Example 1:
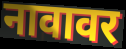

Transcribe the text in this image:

नावावर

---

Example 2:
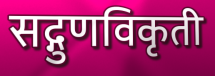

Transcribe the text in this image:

सद्गुणविकृती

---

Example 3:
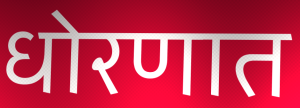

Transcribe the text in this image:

धोरणात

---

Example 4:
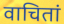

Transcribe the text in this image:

वाचितां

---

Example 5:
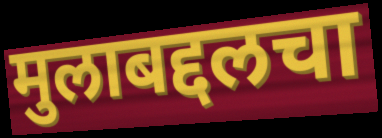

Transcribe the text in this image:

मुलाबद्दलचा